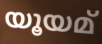
യൂയമ്